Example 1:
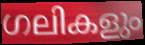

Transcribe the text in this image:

ഗലികളും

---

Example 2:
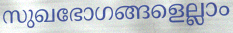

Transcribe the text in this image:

സുഖഭോഗങ്ങളെല്ലാം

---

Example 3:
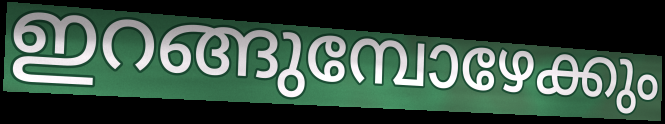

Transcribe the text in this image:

ഇറങ്ങുമ്പോഴേക്കും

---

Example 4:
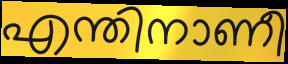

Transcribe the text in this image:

എന്തിനാണീ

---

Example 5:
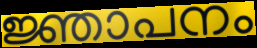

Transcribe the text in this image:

ജ്ഞാപനം